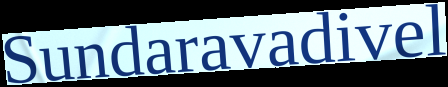
Sundaravadivel